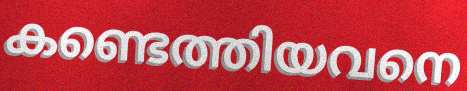
കണ്ടെത്തിയവനെ